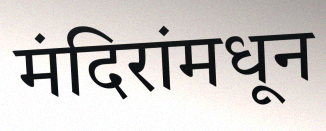
मंदिरांमधून